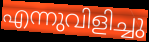
എന്നുവിളിച്ചു